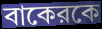
বাকেরকে